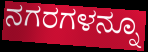
ನಗರಗಳನ್ನೂ